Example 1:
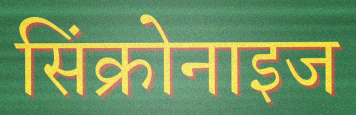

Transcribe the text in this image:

सिंक्रोनाइज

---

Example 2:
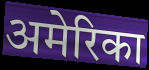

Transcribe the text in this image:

अमेरिका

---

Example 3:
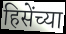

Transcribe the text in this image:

हिसेंच्या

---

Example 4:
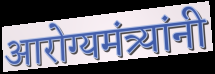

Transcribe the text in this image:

आरोग्यमंत्र्यांनी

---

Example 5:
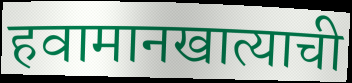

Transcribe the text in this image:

हवामानखात्याची